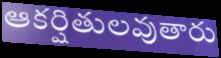
ఆకర్షితులవుతారు